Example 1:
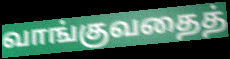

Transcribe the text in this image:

வாங்குவதைத்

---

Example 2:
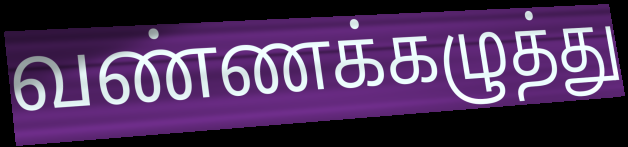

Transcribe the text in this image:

வண்ணக்கழுத்து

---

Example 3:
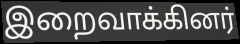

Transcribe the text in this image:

இறைவாக்கினர்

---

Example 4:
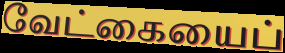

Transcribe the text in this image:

வேட்கையைப்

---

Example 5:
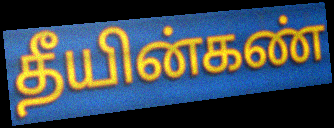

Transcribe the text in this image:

தீயின்கண்